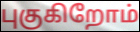
புகுகிறோம்